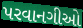
પરવાનગીઓ